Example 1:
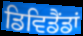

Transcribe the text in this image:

ਡਿਵਿਡੈਂਡਾਂ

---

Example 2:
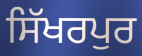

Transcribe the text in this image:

ਸਿੱਖਰਪੁਰ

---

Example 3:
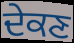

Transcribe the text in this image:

ਦੇਕਣ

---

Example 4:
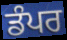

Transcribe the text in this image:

ਡੰਪਰ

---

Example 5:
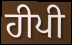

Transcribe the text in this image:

ਹੀਪੀ